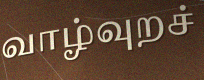
வாழ்வுறச்